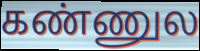
கண்ணுல